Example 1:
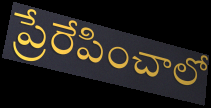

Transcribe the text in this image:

ప్రేరేపించాలో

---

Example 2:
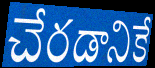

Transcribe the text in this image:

చేరడానికే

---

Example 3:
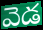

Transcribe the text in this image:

వెడ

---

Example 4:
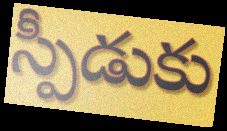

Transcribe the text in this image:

స్పీడుకు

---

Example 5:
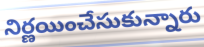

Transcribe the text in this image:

నిర్ణయించేసుకున్నారు